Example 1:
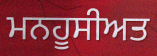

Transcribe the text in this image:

ਮਨਹੂਸੀਅਤ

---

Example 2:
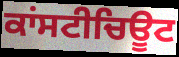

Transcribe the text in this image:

ਕਾਂਸਟੀਚਿਊਟ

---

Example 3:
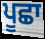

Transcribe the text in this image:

ਪੂਛਾ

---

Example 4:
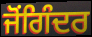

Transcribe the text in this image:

ਜੋਂਗਿੰਦਰ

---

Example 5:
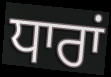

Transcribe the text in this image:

ਧਾਰਾਂ